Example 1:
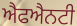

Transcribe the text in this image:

ਐਫਐਨਟੀ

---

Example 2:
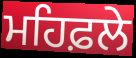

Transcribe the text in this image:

ਮਹਿਫ਼ਲੇ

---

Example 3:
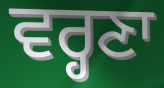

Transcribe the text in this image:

ਵਰ੍ਹਣਾ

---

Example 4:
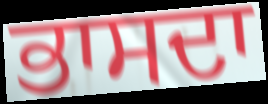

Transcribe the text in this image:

ਭਾਸਦਾ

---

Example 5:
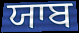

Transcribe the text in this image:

ਯਾਬ